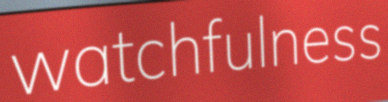
watchfulness